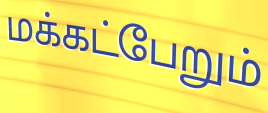
மக்கட்பேறும்